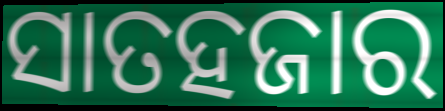
ସାତହଜାର